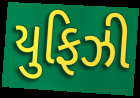
યુફિઝી